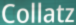
Collatz